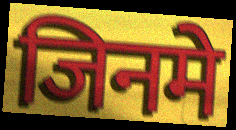
जिनमे